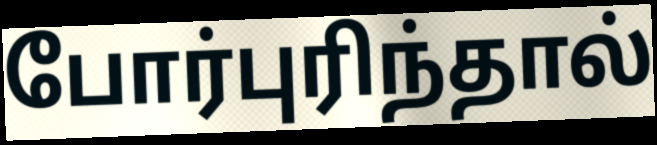
போர்புரிந்தால்